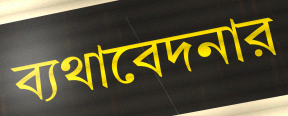
ব্যথাবেদনার